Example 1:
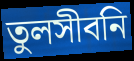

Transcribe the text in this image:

তুলসীবনি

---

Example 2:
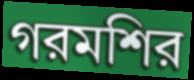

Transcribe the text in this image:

গরমশির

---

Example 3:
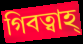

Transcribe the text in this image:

গিবত্বাহ্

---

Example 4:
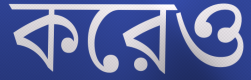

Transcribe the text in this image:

করেও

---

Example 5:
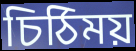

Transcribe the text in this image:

চিঠিময়